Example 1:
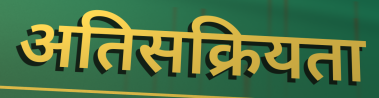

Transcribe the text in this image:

अतिसक्रियता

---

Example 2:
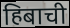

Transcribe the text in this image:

हिबाची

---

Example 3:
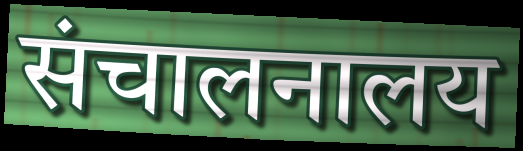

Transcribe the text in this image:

संचालनालय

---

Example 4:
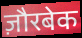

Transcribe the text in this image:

ज़ौरबेक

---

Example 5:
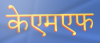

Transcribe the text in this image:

केएमएफ